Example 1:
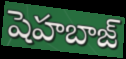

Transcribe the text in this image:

షెహబాజ్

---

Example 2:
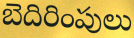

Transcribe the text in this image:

బెదిరింపులు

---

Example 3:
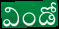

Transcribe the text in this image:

విండో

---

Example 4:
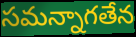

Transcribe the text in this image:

సమన్నాగతేన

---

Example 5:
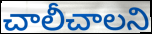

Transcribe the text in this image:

చాలీచాలని